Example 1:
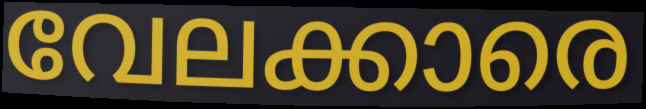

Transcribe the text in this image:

വേലക്കാരെ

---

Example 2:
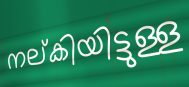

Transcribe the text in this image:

നല്കിയിട്ടുള്ള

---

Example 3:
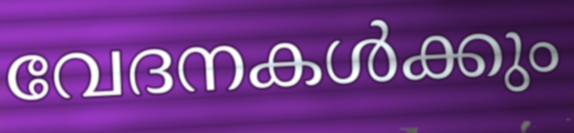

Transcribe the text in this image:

വേദനകൾക്കും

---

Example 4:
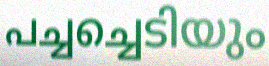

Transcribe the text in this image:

പച്ചച്ചെടിയും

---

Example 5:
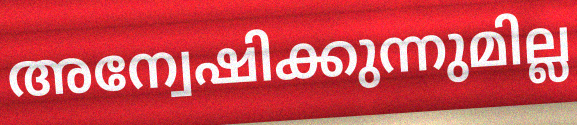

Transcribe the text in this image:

അന്വേഷിക്കുന്നുമില്ല